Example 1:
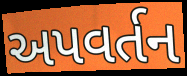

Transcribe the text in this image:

અપવર્તન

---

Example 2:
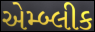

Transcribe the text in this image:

એમ્બ્લીક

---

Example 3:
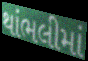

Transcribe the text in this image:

થાંભલીમાં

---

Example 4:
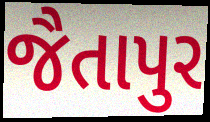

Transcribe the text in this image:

જૈતાપુર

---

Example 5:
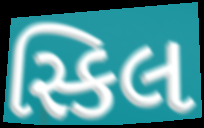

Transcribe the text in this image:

સ્કિલ